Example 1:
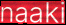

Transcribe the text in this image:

naaki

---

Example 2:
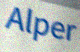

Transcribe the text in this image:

Alper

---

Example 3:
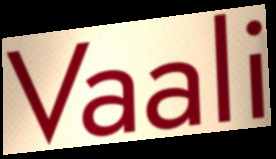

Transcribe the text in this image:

Vaali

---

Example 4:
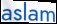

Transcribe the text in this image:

aslam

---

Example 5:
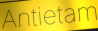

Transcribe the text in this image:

Antietam